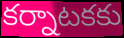
కర్నాటకకు